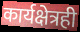
कार्यक्षेत्रही